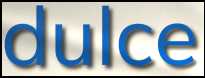
dulce